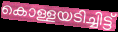
കൊള്ളയടിച്ചിട്ട്